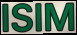
ISIM